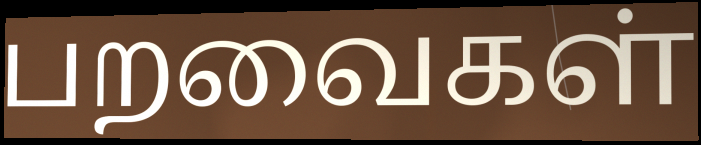
பறவைகள்